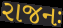
રાજનઃ